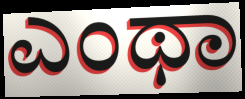
ಎಂಥಾ